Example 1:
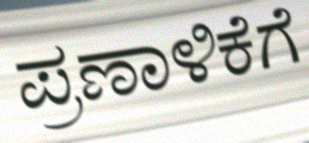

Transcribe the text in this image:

ಪ್ರಣಾಳಿಕೆಗೆ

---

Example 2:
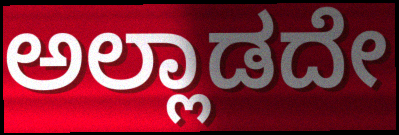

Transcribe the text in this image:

ಅಲ್ಲಾಡದೇ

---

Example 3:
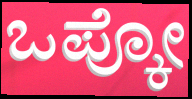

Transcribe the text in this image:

ಒಪ್ಕೋ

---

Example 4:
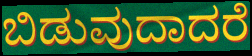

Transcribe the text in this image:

ಬಿಡುವುದಾದರೆ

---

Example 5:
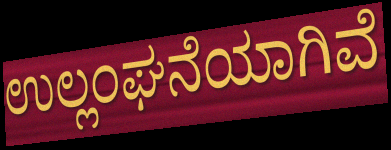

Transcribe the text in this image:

ಉಲ್ಲಂಘನೆಯಾಗಿವೆ